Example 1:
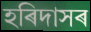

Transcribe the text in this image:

হৰিদাসৰ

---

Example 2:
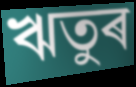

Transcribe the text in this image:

ঋতুৰ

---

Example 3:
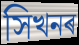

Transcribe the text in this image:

সিখনৰ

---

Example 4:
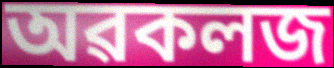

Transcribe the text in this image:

অৱকলজ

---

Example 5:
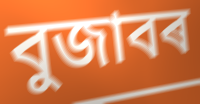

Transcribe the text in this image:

বুজাবৰ